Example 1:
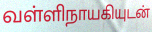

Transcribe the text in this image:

வள்ளிநாயகியுடன்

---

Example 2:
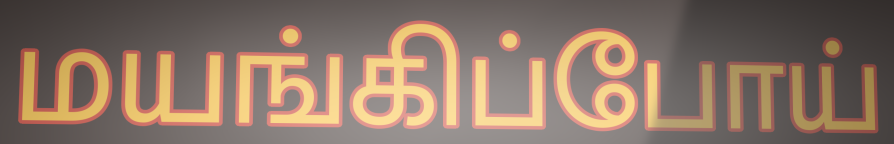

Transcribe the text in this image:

மயங்கிப்போய்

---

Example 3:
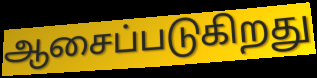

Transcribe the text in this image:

ஆசைப்படுகிறது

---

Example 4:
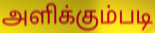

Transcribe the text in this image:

அளிக்கும்படி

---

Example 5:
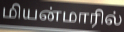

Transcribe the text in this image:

மியன்மாரில்